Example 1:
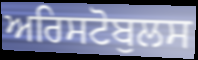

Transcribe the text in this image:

ਅਰਿਸਟੋਬੁਲਸ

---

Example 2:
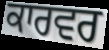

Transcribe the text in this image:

ਕਾਰਵਰ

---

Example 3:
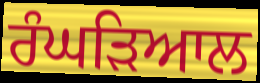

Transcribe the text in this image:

ਰੰਘੜਿਆਲ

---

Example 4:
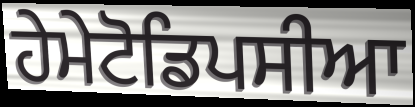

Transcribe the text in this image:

ਹੇਮੇਟੋਡਿਪਸੀਆ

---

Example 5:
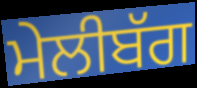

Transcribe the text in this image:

ਮੇਲੀਬੱਗ